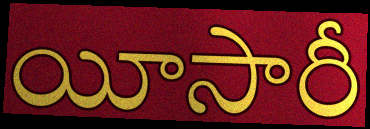
యీసారీ